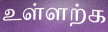
உள்ளற்க